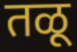
तळू